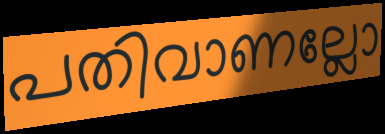
പതിവാണല്ലോ